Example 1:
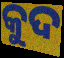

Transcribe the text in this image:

କୁଦ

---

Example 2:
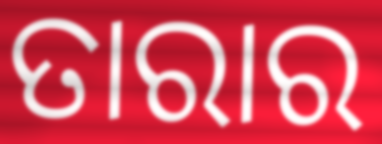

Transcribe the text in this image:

ତାରାର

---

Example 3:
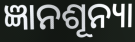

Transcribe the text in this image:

ଜ୍ଞାନଶୂନ୍ୟା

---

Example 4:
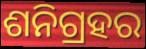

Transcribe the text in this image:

ଶନିଗ୍ରହର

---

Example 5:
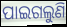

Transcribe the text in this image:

ପାଇଗଲୁଣି